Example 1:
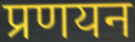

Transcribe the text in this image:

प्रणयन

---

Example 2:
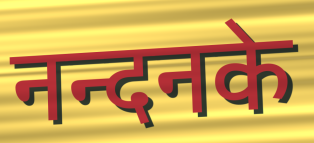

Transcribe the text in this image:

नन्दनके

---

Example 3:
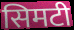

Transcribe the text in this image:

सिमटी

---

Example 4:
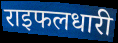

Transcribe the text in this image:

राइफलधारी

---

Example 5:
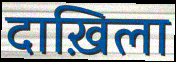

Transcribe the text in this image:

दाख़िला